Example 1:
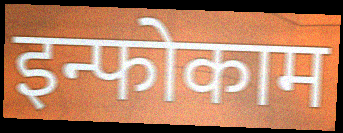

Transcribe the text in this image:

इन्फोकाम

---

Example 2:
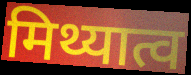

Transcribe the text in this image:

मिथ्यात्व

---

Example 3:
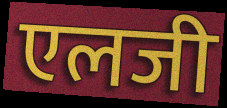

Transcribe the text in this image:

एलजी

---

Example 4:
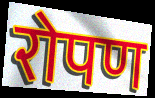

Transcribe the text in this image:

रोपण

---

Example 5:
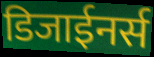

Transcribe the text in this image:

डिजाईनर्स